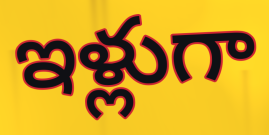
ఇళ్లుగా